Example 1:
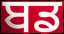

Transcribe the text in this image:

ਬਡ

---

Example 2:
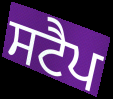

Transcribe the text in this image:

ਸਟੈਪ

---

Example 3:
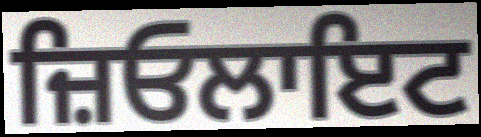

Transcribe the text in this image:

ਜ਼ਿਓਲਾਇਟ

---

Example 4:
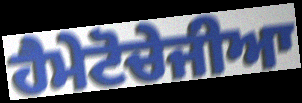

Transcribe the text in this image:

ਹੈਮੇਟੋਚੇਜੀਆ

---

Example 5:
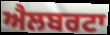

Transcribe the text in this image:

ਐਲਬਰਟਾ